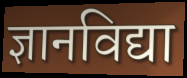
ज्ञानविद्या